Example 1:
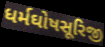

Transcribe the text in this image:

ધર્મઘોષસૂરિજી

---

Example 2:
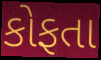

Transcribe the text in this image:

કોફતા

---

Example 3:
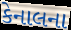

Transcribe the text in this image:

કેનાલના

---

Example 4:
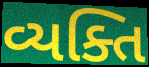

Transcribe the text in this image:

વ્યક્તિ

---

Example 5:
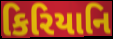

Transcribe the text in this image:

કિરિયાનિ